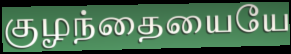
குழந்தையையே